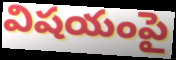
విషయంపై